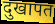
दुखापत